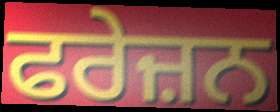
ਫਰੇਜ਼ਨ